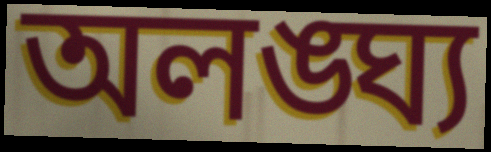
অলঙ্ঘ্য